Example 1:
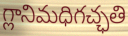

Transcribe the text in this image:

గ్లానిమధిగచ్ఛతి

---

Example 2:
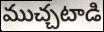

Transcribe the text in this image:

ముచ్చటాడి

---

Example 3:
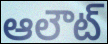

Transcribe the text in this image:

ఆలౌట్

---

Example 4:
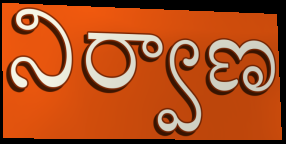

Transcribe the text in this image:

నిర్వాణ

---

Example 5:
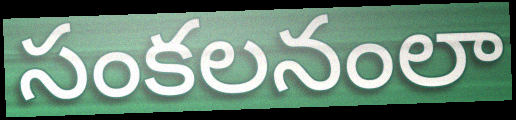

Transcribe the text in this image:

సంకలనంలా